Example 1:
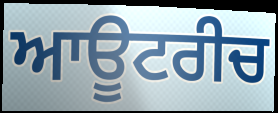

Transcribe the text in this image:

ਆਊਟਰੀਚ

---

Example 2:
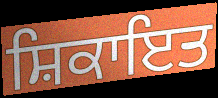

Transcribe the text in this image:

ਸ਼ਿਕਾਇਤ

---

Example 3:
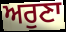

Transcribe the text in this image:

ਅਰੁਣਾ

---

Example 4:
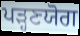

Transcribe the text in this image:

ਪੜ੍ਹਣਯੋਗ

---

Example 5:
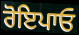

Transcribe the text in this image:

ਰੋਇਪਾਓ